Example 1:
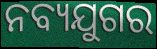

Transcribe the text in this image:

ନବ୍ୟଯୁଗର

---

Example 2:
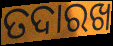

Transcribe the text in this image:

ତଦାରଖ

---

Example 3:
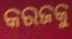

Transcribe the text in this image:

କରଜକୁ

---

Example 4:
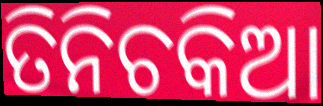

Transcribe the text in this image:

ତିନିଚକିଆ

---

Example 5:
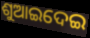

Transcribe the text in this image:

ଶୁଆଇଦେଇ